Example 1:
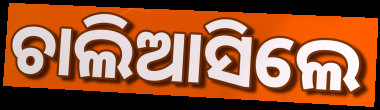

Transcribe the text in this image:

ଚାଲିଆସିଲେ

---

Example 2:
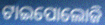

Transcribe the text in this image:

ଟାଇପୋଲୋଜି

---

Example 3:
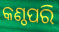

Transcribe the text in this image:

କଣ୍ଠପରି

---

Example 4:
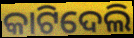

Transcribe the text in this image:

କାଟିଦେଲି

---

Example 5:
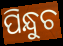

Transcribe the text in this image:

ପିନ୍ଧୁଚ